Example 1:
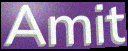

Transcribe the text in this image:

Amit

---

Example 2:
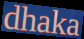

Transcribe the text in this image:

dhaka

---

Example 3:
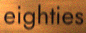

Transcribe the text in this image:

eighties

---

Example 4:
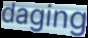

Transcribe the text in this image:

daging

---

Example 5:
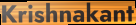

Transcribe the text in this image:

Krishnakant